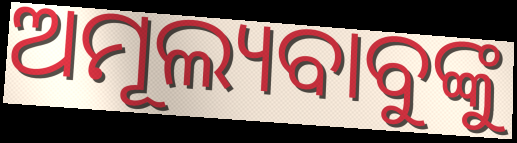
ଅମୂଲ୍ୟବାବୁଙ୍କୁ